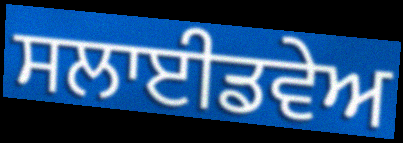
ਸਲਾਈਡਵੇਅ